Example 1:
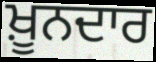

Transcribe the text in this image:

ਖ਼ੂਨਦਾਰ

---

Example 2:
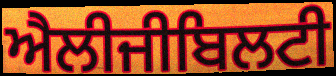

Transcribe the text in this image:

ਐਲੀਜੀਬਿਲਟੀ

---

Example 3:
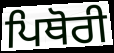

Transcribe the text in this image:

ਪਿਥੋਰੀ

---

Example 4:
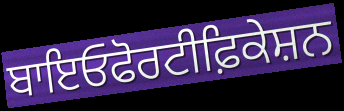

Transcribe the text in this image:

ਬਾਇਓਫੋਰਟੀਫ਼ਿਕੇਸ਼ਨ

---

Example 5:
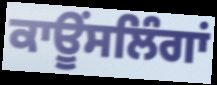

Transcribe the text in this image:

ਕਾਊਂਸਲਿੰਗਾਂ